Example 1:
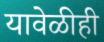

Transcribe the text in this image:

यावेळीही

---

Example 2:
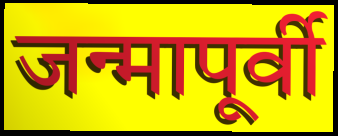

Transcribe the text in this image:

जन्मापूर्वी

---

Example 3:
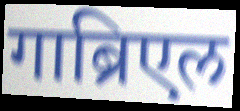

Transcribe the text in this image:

गाब्रिएल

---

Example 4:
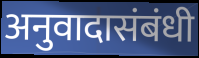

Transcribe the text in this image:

अनुवादासंबंधी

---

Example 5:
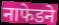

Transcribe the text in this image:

नाफेडने